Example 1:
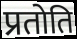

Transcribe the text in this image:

प्रतोति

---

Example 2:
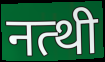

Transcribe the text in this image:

नत्‍थी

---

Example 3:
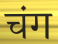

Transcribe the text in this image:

चंग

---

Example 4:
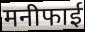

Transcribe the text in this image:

मनीफाई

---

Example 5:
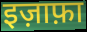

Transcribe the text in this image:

इज़ाफ़ा